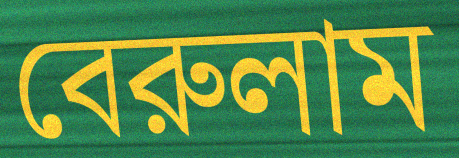
বেরুলাম